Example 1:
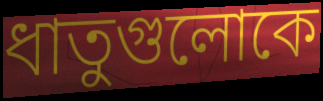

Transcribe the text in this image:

ধাতুগুলোকে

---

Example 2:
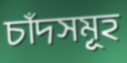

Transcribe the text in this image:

চাঁদসমূহ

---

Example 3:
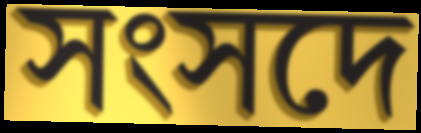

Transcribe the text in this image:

সংসদে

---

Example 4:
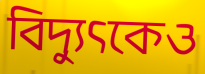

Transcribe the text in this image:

বিদ্যুৎকেও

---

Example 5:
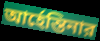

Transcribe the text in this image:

আর্হেন্তিনার